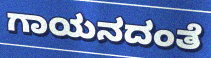
ಗಾಯನದಂತೆ